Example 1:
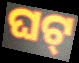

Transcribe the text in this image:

ଘଟ୍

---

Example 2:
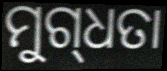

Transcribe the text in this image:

ମୁଗ୍‌ଧତା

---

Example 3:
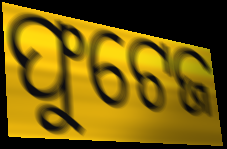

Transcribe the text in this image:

ଫୁଟେଜ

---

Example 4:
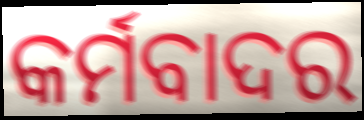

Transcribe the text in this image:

କର୍ମବାଦର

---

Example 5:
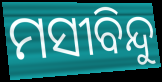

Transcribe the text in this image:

ମସୀବିନ୍ଦୁ